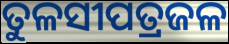
ତୁଳସୀପତ୍ରଜଳ